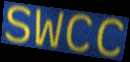
SWCC